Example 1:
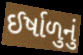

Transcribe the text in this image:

ઈર્ષાળુનું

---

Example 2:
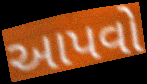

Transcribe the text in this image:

આપવો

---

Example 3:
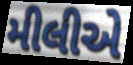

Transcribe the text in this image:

મીલીએ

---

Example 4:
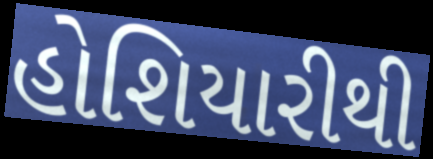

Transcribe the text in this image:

હોશિયારીથી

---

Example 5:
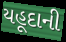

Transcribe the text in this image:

યહૂદાની